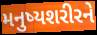
મનુષ્યશરીરને